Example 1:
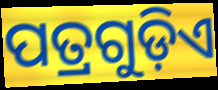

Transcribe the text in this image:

ପତ୍ରଗୁଡ଼ିଏ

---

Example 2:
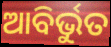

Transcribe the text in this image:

ଆବିର୍ଭୁତ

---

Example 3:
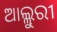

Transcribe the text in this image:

ଆଲ୍ଲୁରୀ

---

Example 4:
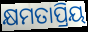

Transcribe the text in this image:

କ୍ଷମତାପ୍ରିୟ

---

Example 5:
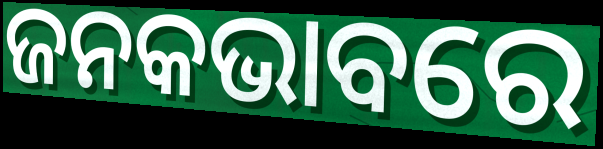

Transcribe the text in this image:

ଜନକଭାବରେ